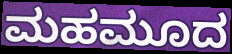
ಮಹಮೂದ